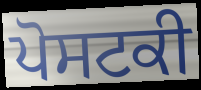
ਪੋਸਟਕੀ